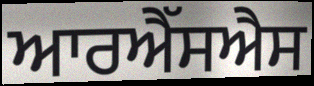
ਆਰਐੱਸਐਸ